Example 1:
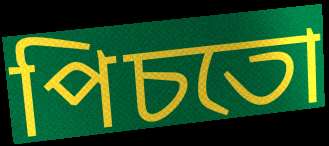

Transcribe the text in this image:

পিচতো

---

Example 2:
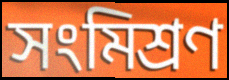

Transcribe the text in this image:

সংমিশ্ৰণ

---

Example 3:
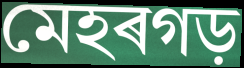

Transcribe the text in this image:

মেহৰগড়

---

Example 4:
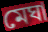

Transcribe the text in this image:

মেঘা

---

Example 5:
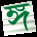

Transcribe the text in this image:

ঙ্গ